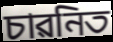
চাৱনিত